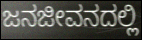
ಜನಜೀವನದಲ್ಲಿ